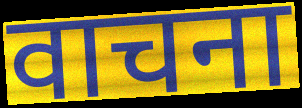
वाचना